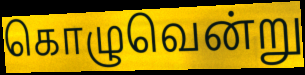
கொழுவென்று